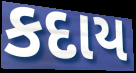
કદાય